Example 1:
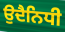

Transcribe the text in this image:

ਉਦੈਨਿਧੀ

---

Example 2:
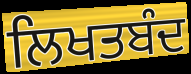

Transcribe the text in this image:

ਲਿਖਤਬੰਦ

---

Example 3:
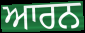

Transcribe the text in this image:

ਆਰਨ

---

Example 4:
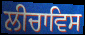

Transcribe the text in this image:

ਲੀਚਾਵਿਸ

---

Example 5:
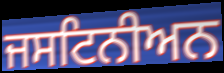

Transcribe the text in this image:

ਜਸਟਿਨੀਅਨ